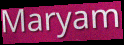
Maryam